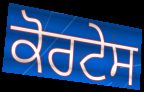
ਕੋਰਟੇਸ